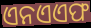
ଏନଏଏଫ